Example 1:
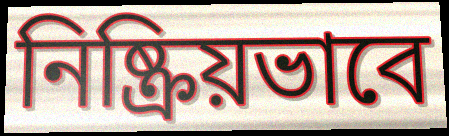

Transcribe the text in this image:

নিষ্ক্রিয়ভাবে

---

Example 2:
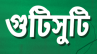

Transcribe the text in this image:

গুটিসুটি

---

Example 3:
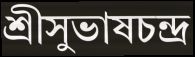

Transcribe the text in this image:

শ্রীসুভাষচন্দ্র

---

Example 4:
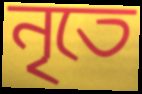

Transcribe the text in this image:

নৃতে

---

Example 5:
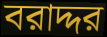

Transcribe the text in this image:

বরাদ্দর